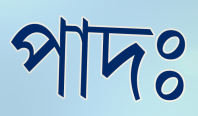
পাদঃ